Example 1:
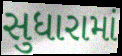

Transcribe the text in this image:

સુધારામાં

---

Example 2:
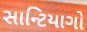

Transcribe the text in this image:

સાન્ટિયાગો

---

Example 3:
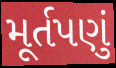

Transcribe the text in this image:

મૂર્તપણું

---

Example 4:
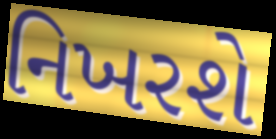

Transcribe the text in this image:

નિખરશે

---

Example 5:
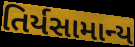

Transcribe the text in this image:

તિર્યસામાન્ય